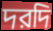
দরদি